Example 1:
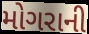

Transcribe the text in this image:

મોગરાની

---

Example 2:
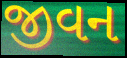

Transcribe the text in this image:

જીવન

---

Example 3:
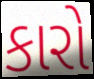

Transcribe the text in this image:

કારો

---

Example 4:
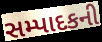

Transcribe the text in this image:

સમ્પાદકની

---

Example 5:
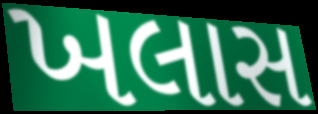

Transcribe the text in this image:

ખલાસ